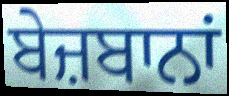
ਬੇਜ਼ਬਾਨਾਂ